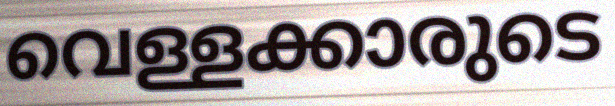
വെള്ളക്കാരുടെ